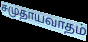
சமுதாயவாதம்